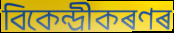
বিকেন্দ্ৰীকৰণৰ